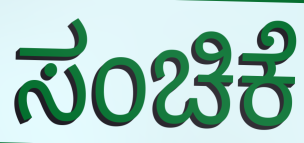
ಸಂಚಿಕೆ